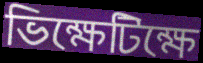
ভিক্ষেটিক্ষে